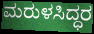
ಮರುಳಸಿದ್ಧರ